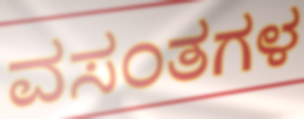
ವಸಂತಗಳ